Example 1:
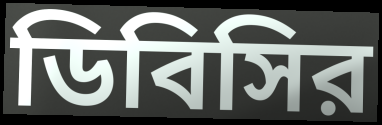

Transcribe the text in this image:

ডিবিসির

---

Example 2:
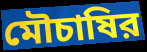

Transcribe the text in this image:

মৌচাষির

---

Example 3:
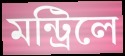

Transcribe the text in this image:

মন্ট্রিলে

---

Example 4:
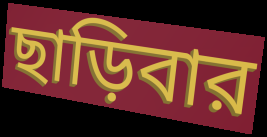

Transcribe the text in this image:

ছাড়িবার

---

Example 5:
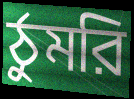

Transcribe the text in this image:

ঠুমরি